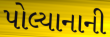
પોલ્યાનાની